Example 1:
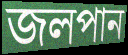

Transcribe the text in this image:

জলপান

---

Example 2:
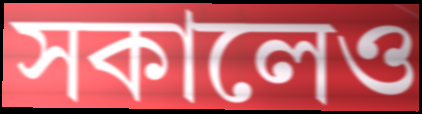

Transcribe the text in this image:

সকালেও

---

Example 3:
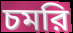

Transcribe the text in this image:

চমরি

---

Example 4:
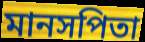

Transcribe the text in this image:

মানসপিতা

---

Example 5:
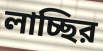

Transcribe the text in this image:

লাচ্ছির